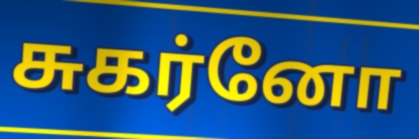
சுகர்னோ